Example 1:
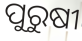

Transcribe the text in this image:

ପୁରୁଷୀ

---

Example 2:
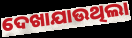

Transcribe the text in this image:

ଦେଖାଯାଉଥିଲା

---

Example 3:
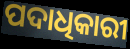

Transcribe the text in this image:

ପଦାଧିକାରୀ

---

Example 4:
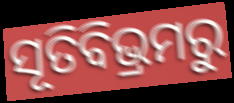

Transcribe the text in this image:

ସୂତିବିଭ୍ରମରୁ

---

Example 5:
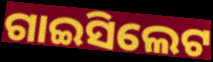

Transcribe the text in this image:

ଗାଇସିଲେଟ